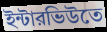
ইন্টারভিউতে